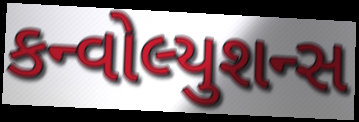
કન્વોલ્યુશન્સ